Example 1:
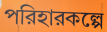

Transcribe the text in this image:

পরিহারকল্পে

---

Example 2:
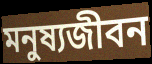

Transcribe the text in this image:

মনুষ্যজীবন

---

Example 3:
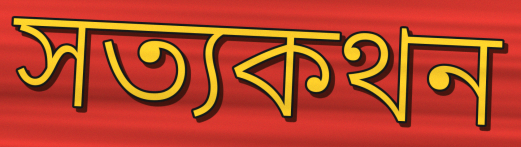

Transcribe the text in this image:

সত্যকথন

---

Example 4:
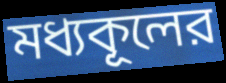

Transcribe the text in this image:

মধ্যকূলের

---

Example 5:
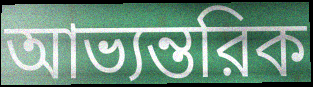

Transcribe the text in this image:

আভ্যন্তরিক